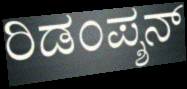
ರಿಡಂಪ್ಶನ್